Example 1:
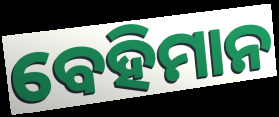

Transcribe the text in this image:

ବେହିମାନ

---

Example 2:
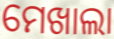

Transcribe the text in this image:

ମେଖାଲା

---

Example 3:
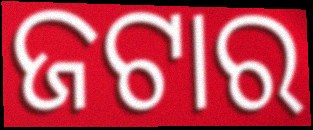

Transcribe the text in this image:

ଜଟାର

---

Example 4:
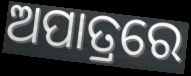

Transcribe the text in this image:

ଅପାତ୍ରରେ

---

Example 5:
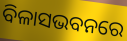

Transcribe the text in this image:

ବିଳାସଭବନରେ